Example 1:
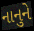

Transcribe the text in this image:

નાનુને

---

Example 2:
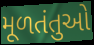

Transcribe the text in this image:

મૂળતંતુઓ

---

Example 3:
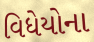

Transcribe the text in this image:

વિધેયોના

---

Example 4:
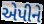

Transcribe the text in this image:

એપીને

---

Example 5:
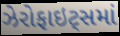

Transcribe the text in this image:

ઝેરોફાઇટ્સમાં